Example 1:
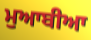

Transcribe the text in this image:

ਮੁਆਬੀਆ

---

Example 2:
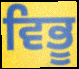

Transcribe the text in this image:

ਵਿਭੂ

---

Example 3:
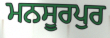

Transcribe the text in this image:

ਮਨਸੂਰਪੁਰ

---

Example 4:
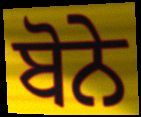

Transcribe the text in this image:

ਬੋਨੇ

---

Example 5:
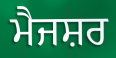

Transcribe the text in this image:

ਮੈਜਸ਼ਰ